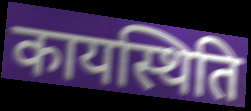
कायस्थिति